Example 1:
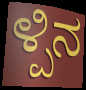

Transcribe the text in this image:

ಳ್ಪಿನ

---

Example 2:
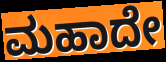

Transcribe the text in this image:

ಮಹಾದೇ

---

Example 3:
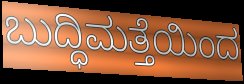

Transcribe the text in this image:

ಬುದ್ಧಿಮತ್ತೆಯಿಂದ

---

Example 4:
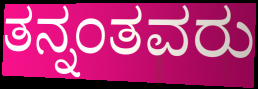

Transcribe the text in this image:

ತನ್ನಂತವರು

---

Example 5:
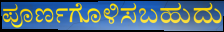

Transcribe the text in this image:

ಪೂರ್ಣಗೊಳಿಸಬಹುದು